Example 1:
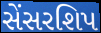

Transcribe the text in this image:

સેંસરશિપ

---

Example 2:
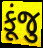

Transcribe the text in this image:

કૂંજુ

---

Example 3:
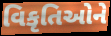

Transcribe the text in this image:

વિકૃતિઓને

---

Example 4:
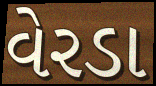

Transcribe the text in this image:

વેરડા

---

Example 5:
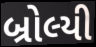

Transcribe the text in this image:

બ્રોલ્યી